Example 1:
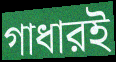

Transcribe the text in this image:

গাধারই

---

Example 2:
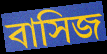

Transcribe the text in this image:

বাসিজ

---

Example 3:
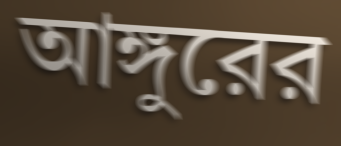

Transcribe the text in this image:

আঙ্গুরের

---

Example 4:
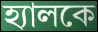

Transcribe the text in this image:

হ্যালকে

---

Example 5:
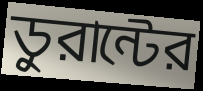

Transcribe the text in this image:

ডুরান্টের